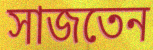
সাজতেন